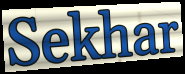
Sekhar